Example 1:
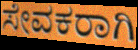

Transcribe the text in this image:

ಸೇವಕರಾಗಿ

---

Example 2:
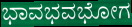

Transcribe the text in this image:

ಭಾವಭವಭೋಗ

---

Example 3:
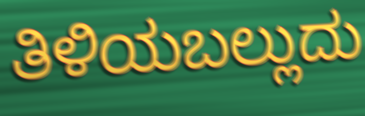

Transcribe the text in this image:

ತಿಳಿಯಬಲ್ಲುದು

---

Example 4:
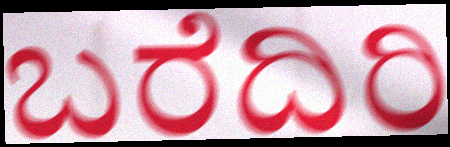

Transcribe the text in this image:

ಬರೆದಿರಿ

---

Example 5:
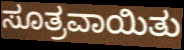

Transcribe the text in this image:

ಸೂತ್ರವಾಯಿತು